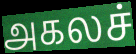
அகலச்